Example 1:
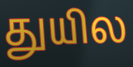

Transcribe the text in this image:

துயில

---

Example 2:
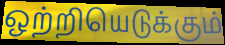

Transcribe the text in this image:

ஒற்றியெடுக்கும்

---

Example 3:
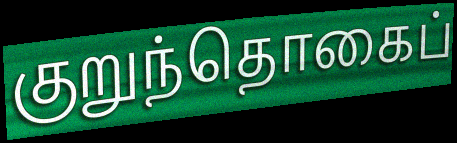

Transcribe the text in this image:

குறுந்தொகைப்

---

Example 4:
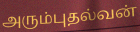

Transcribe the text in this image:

அரும்புதல்வன்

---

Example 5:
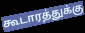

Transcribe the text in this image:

கூடாரத்துக்கு